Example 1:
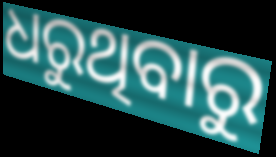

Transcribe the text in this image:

ଧରୁଥିବାରୁ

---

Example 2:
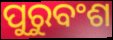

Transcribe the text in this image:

ପୁରୁବଂଶ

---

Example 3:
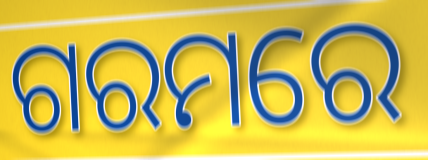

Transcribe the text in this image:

ଗରମରେ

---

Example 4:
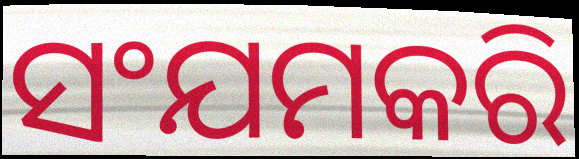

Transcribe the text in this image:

ସଂଯମକରି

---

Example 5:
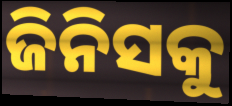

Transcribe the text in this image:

ଜିନିସକୁ